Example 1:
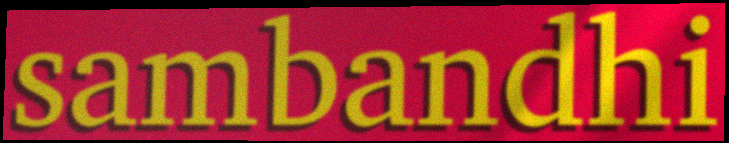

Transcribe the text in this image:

sambandhi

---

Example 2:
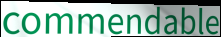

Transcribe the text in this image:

commendable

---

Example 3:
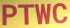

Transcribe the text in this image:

PTWC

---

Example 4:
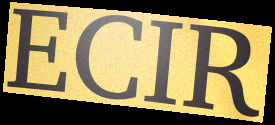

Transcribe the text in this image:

ECIR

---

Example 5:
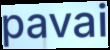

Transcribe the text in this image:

pavai